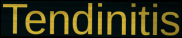
Tendinitis